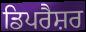
ਡਿਪਰੈਸ਼ਰ